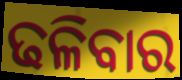
ଢଳିବାର